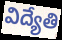
విద్యేతి